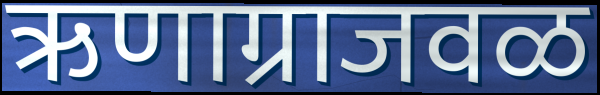
ऋणाग्राजवळ